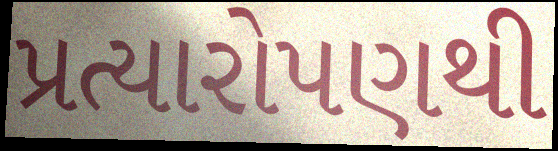
પ્રત્યારોપણથી